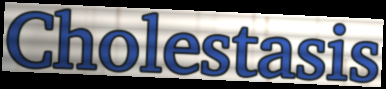
Cholestasis